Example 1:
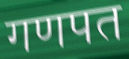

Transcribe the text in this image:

गणपत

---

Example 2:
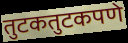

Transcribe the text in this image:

तुटकतुटकपणे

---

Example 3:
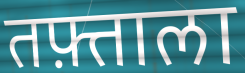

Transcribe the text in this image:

तफ़्ताला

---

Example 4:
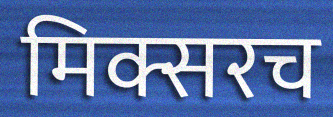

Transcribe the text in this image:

मिक्सरच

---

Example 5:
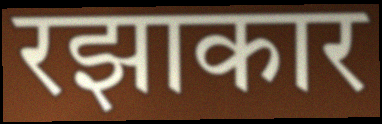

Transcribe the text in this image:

रझाकार